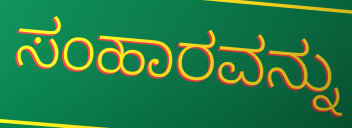
ಸಂಹಾರವನ್ನು